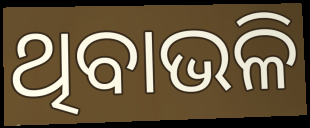
ଥିବାଭଳି